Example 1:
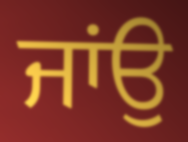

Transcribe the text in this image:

ਜਾਂਉ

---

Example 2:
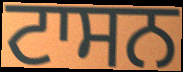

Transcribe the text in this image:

ਟਾਸਨ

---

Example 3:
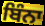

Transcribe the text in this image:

ਬਿੰਨਾ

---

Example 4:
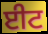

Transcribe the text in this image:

ਈਟ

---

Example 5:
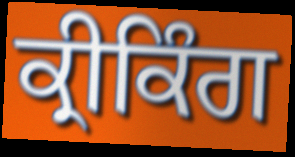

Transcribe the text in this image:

ਕ੍ਰੀਕਿੰਗ